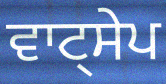
ਵਾਟ੍ਸੇਪ